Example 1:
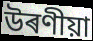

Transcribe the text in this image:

উৰণীয়া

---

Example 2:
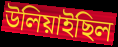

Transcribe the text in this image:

উলিয়াইছিল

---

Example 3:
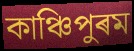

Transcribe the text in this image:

কাঞ্চিপুৰম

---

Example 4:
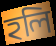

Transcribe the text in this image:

হলি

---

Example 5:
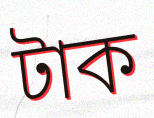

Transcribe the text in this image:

টাক